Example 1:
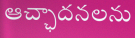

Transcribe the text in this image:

ఆచ్ఛాదనలను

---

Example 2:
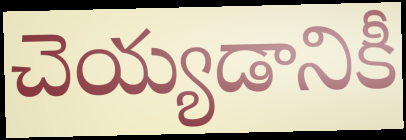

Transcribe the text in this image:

చెయ్యడానికీ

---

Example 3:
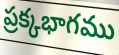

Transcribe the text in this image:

ప్రక్కభాగము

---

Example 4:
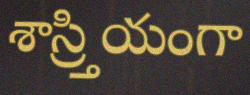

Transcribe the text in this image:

శాస్ర్తియంగా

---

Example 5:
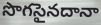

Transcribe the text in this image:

సొగసైనదానా